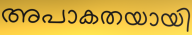
അപാകതയായി